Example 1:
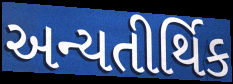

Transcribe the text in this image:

અન્યતીર્થિક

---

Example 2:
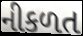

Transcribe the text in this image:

નીકળત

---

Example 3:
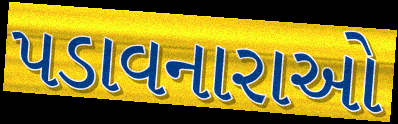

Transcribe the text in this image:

પડાવનારાઓ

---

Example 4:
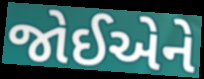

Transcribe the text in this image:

જોઈએને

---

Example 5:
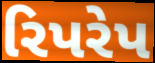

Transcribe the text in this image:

રિપરેપ